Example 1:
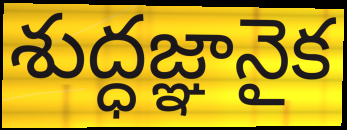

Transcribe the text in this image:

శుద్ధజ్ఞానైక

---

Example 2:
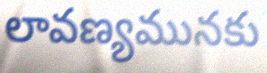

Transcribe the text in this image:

లావణ్యమునకు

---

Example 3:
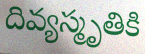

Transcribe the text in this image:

దివ్యస్మృతికి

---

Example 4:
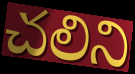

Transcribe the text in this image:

చలిని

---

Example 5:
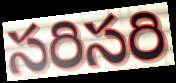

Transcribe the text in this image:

సరిసరి